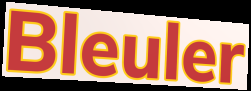
Bleuler